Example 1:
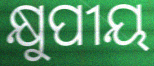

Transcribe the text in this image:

କ୍ଷୁପୀୟ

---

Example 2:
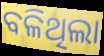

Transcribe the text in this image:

ବଳିଥିଲା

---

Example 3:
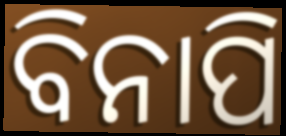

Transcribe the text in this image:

ବିନାପି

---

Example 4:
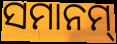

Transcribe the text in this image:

ସମାନମ୍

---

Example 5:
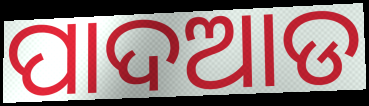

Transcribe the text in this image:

ପାଦଆଡ